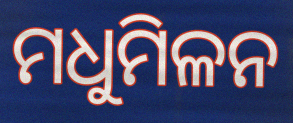
ମଧୁମିଳନ